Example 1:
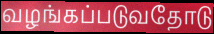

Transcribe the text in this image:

வழங்கப்படுவதோடு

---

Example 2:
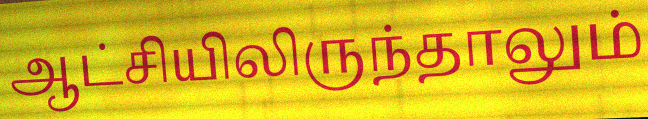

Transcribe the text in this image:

ஆட்சியிலிருந்தாலும்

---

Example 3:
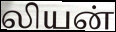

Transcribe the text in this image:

லியன்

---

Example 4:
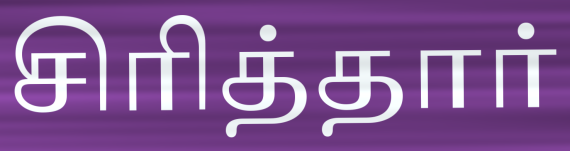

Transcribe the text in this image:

சிரித்தார்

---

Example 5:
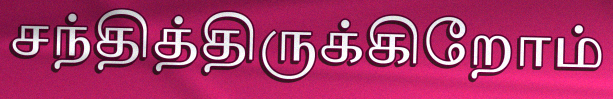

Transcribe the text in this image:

சந்தித்திருக்கிறோம்